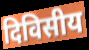
दिविसीय